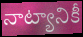
నాట్యానికీ